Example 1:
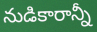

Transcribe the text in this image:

నుడికారాన్నీ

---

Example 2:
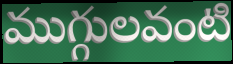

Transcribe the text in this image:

ముగ్గులవంటి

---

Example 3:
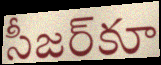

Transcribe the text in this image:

సీజర్‌కూ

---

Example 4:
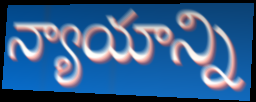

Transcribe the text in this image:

న్యాయాన్ని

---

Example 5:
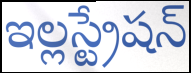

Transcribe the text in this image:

ఇల్లస్ట్రేషన్